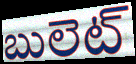
బులెట్